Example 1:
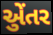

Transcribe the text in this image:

એુંતર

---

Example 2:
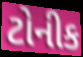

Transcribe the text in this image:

ટોનીક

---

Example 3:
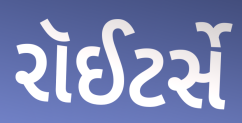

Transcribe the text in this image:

રૉઈટર્સે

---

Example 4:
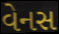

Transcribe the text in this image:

વેનસ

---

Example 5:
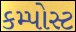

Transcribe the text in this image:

કમ્પોસ્ટ